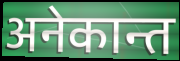
अनेकान्त